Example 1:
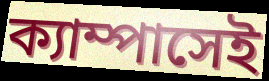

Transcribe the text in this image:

ক্যাম্পাসেই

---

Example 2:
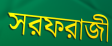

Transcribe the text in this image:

সরফরাজী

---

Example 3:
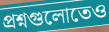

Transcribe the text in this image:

প্রশ্নগুলোতেও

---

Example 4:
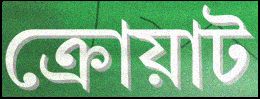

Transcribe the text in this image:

ক্রোয়াট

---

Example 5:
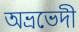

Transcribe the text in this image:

অভ্রভেদী